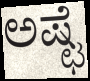
ಅಷ್ಟೆ